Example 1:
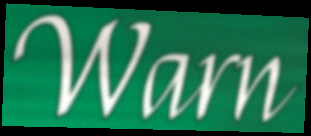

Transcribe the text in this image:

Warn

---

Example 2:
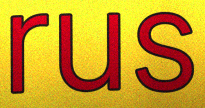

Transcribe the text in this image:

rus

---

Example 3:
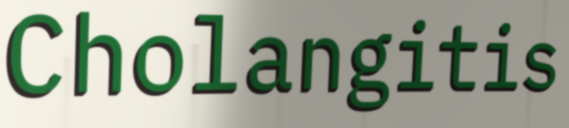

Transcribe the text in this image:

Cholangitis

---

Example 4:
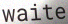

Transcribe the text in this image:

waite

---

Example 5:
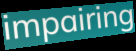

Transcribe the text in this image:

impairing